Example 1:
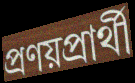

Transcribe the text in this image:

প্ৰণয়প্ৰাৰ্থী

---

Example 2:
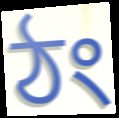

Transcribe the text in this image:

ঠং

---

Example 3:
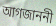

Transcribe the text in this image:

আগজাননী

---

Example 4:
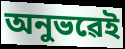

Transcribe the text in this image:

অনুভৱেই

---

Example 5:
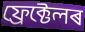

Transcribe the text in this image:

ফ্ৰেক্টেলৰ